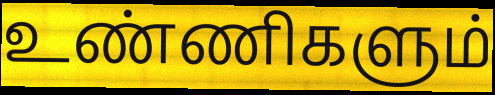
உண்ணிகளும்